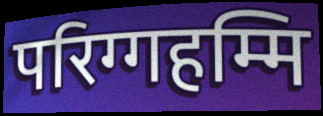
परिग्गहम्मि